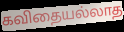
கவிதையல்லாத